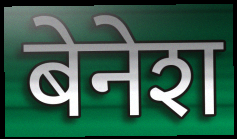
बेनेश